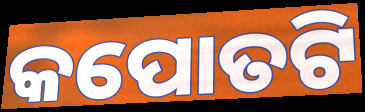
କପୋତଟି